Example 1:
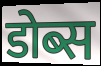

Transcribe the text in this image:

डोब्स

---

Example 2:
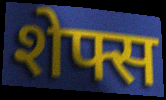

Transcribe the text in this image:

शेफ्स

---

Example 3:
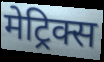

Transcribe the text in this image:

मेट्रिक्स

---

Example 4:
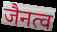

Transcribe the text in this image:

जैनत्व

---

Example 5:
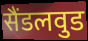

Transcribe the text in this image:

सैंडलवुड